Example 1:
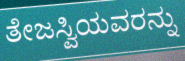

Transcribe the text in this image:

ತೇಜಸ್ವಿಯವರನ್ನು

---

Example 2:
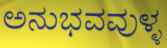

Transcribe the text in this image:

ಅನುಭವವುಳ್ಳ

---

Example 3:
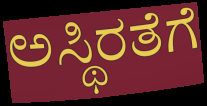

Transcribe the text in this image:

ಅಸ್ಥಿರತೆಗೆ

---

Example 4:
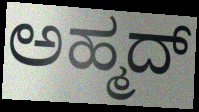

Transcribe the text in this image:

ಅಹ್ಮದ್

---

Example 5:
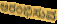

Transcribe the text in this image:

ಆರಂಭಿಸುವ